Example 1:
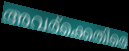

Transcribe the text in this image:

അവര്ക്കെതിരെ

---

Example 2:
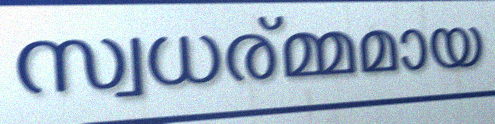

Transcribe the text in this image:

സ്വധര്മ്മമായ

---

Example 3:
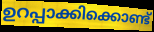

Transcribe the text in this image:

ഉറപ്പാക്കിക്കൊണ്ട്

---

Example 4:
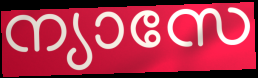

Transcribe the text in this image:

ന്യാസേ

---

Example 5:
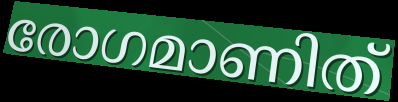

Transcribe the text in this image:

രോഗമാണിത്